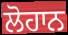
ਲੋਹਾਨ